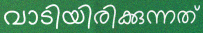
വാടിയിരിക്കുന്നത്